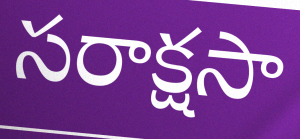
సరాక్షసా